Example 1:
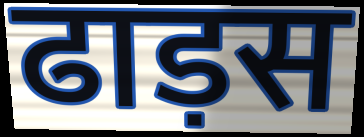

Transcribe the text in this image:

ढाड़स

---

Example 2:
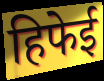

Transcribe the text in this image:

हिफेई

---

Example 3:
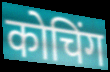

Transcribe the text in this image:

कोचिंग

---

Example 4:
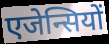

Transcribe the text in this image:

एजेन्सियों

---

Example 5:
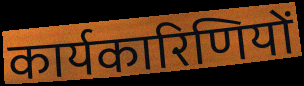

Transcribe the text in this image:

कार्यकारिणियों